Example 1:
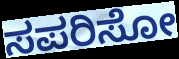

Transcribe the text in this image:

ಸಪರಿಸೋ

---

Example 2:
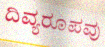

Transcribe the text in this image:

ದಿವ್ಯರೂಪವು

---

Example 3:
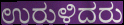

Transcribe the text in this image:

ಉರುಳಿದರು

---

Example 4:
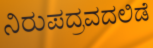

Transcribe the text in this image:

ನಿರುಪದ್ರವದಲಿಡೆ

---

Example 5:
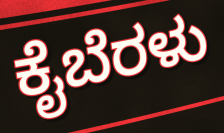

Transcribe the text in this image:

ಕೈಬೆರಳು